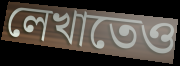
লেখাতেও